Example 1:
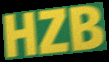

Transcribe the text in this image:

HZB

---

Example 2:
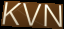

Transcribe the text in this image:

KVN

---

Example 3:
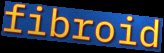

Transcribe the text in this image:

fibroid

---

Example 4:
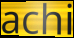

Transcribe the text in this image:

achi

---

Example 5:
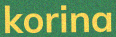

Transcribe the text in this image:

korina